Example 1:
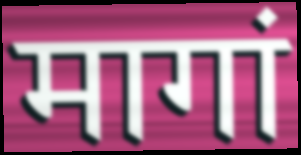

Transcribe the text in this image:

मागां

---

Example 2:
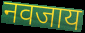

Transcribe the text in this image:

नवजाय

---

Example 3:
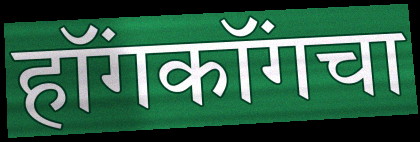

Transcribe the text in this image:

हॉंगकॉंगचा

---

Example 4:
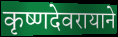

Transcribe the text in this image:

कृष्णदेवरायाने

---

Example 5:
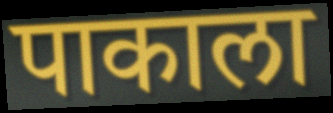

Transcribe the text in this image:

पाकाला